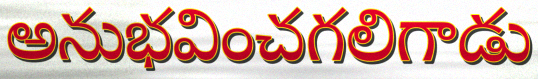
అనుభవించగలిగాడు